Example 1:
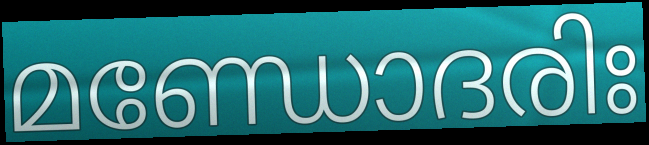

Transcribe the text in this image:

മണ്ഡോദരിഃ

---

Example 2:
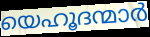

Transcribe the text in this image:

യെഹൂദന്മാർ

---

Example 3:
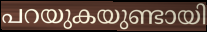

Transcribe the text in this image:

പറയുകയുണ്ടായി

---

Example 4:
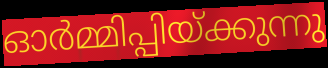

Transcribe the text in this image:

ഓർമ്മിപ്പിയ്ക്കുന്നു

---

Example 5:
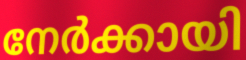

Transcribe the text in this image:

നേർക്കായി